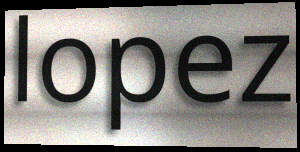
lopez